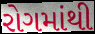
રોગમાંથી